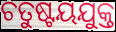
ଚତୁଷ୍ଟୟଯୁକ୍ତ